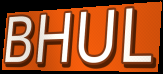
BHUL